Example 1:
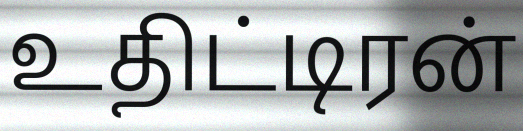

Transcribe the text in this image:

உதிட்டிரன்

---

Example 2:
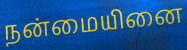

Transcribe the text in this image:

நன்மையினை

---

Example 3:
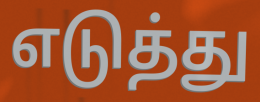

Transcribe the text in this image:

எடுத்து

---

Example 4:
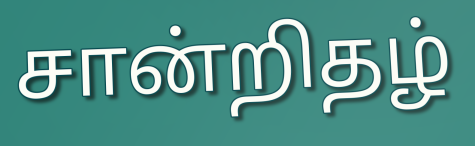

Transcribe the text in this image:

சான்றிதழ்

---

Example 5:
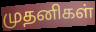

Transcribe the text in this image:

முதனிகள்